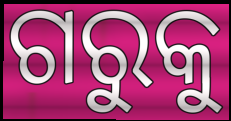
ଗରୁକୁ